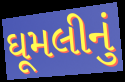
ઘૂમલીનું